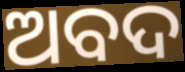
ଅବଦ